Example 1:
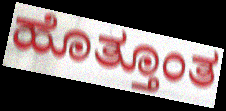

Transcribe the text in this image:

ಹೊತ್ತೂಂತ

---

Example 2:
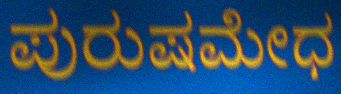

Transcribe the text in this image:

ಪುರುಷಮೇಧ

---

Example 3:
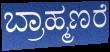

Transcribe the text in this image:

ಬ್ರಾಹ್ಮಣರೆ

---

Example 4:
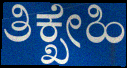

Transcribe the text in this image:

ತಿಕ್ಖೇಹಿ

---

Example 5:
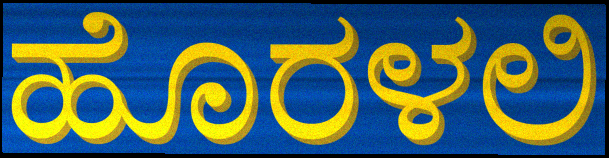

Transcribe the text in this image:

ಹೊರಳಲಿ